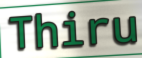
Thiru